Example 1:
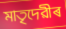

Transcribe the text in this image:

মাতৃদেৱীৰ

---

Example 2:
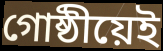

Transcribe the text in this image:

গোষ্ঠীয়েই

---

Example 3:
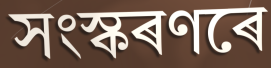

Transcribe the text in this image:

সংস্কৰণৰে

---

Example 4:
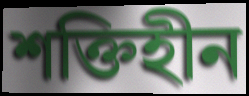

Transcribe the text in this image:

শক্তিহীন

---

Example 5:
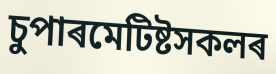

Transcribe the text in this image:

চুপাৰমেটিষ্টসকলৰ